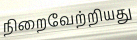
நிறைவேற்றியது